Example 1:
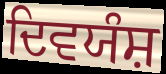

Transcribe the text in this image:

ਦਿਵਯੰਸ਼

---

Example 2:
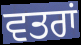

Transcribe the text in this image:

ਵਤਰਾਂ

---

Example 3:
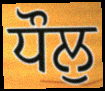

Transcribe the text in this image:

ਧੌਲੁ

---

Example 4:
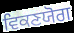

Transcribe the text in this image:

ਵਿਕਣਯੋਗ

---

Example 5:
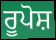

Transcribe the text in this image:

ਰੂਪੋਸ਼